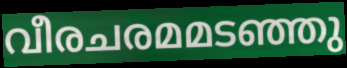
വീരചരമമടഞ്ഞു